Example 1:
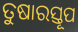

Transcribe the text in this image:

ତୁଷାରସ୍ତୂପ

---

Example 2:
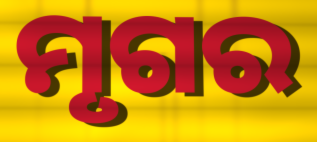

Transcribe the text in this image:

ମୃଗର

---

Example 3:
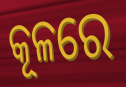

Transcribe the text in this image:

କୂଳରେ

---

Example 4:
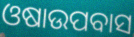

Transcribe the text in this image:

ଓଷାଉପବାସ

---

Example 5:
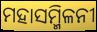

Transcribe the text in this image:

ମହାସମ୍ମିଳନୀ